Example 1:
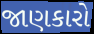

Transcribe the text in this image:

જાણકારો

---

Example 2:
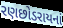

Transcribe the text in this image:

રણછોડરાયનાં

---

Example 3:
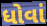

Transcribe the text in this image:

ધોવાં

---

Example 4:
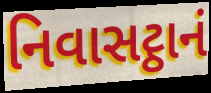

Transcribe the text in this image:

નિવાસટ્ઠાનં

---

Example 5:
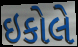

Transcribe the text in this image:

ઇકોલે